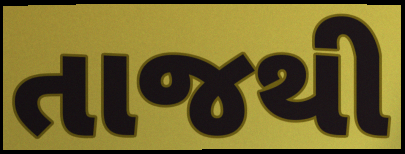
તાજથી